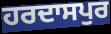
ਹਰਦਾਸਪੁਰ